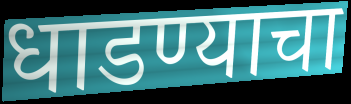
धाडण्याचा